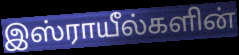
இஸ்ராயீல்களின்